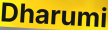
Dharumi